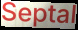
Septal